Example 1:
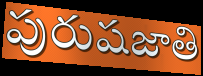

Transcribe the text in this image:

పురుషజాతి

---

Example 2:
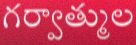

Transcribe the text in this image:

గర్వాత్ముల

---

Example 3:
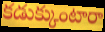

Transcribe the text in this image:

కడుక్కుంటారా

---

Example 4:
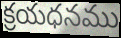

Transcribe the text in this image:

క్రయధనము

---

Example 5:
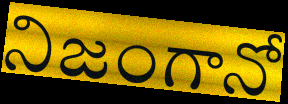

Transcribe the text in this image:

నిజంగానో